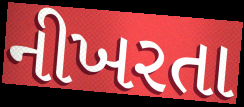
નીખરતા